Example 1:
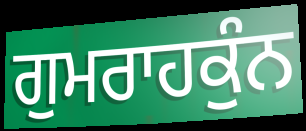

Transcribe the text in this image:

ਗੁਮਰਾਹਕੁੰਨ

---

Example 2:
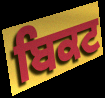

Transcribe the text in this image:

ਬਿਕਟ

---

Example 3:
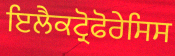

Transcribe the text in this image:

ਇਲੈਕਟ੍ਰੋਫੋਰੇਸਿਸ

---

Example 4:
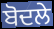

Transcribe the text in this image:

ਬੋਦਲੇ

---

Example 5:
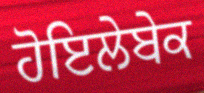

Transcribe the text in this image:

ਹੋਇਲੇਬੇਕ